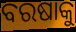
ବରଷାକୁ